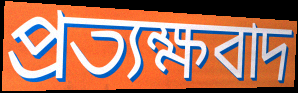
প্রত্যক্ষবাদ